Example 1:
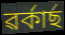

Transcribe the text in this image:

ৱৰ্কাৰ্ছ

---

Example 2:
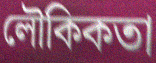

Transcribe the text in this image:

লৌকিকতা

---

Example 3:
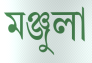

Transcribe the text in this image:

মঞ্জুলা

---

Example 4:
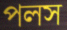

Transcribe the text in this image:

পলস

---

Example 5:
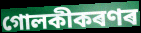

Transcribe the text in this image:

গোলকীকৰণৰ